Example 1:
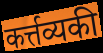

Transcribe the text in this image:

कर्त्तव्यकी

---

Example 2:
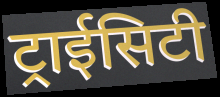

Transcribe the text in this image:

ट्राईसिटी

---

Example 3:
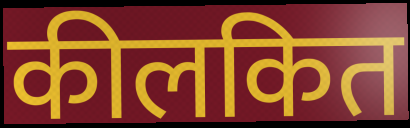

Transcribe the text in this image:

कीलकित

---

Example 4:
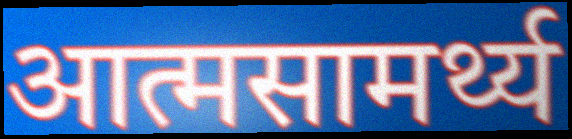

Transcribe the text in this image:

आत्मसामर्थ्य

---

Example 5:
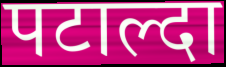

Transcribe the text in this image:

पटाल्दा